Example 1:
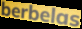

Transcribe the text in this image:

berbelas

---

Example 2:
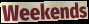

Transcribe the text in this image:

Weekends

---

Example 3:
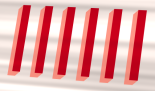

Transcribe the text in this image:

IIIIII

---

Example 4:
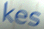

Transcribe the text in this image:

kes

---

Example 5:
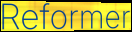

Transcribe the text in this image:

Reformer